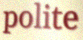
polite